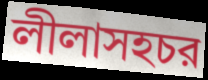
লীলাসহচর